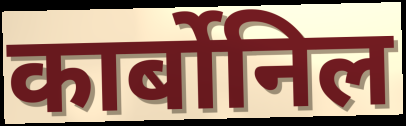
कार्बोनिल